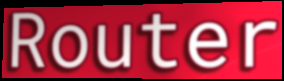
Router